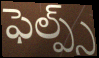
ఫెల్ప్స్